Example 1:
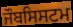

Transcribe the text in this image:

ਜੌਬਸਿਸਟਮ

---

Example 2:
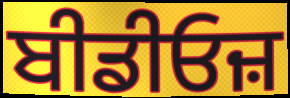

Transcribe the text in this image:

ਬੀਡੀਓਜ਼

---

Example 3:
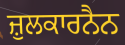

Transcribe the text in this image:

ਜ਼ੁਲਕਾਰਨੈਨ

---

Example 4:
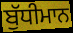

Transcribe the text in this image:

ਬੁੱਧੀਮਾਨ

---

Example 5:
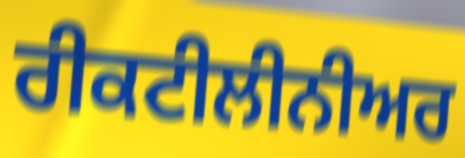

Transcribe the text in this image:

ਰੀਕਟੀਲੀਨੀਅਰ